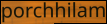
porchhilam